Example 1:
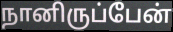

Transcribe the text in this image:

நானிருப்பேன்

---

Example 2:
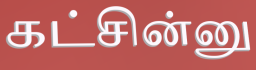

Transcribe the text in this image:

கட்சின்னு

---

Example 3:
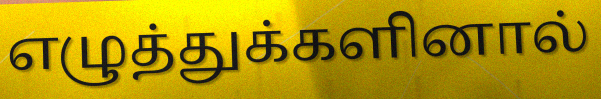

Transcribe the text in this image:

எழுத்துக்களினால்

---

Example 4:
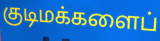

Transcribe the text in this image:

குடிமக்களைப்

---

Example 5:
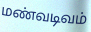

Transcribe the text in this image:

மண்வடிவம்